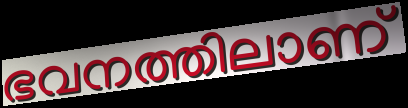
ഭവനത്തിലാണ്